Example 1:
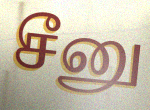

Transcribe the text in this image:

சீனு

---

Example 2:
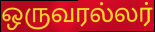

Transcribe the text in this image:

ஒருவரல்லர்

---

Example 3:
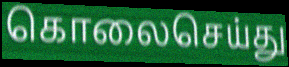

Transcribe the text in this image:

கொலைசெய்து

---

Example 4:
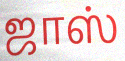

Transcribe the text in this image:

ஜாஸ்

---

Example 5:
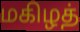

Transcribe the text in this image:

மகிழத்